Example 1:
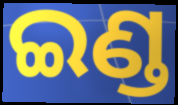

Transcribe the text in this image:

ଇଣ୍ଡ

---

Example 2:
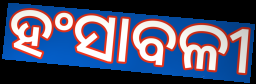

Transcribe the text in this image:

ହଂସାବଳୀ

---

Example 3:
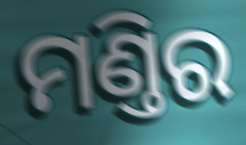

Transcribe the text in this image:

ମଣ୍ତିର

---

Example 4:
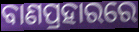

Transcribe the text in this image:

ବାଣପ୍ରହାରରେ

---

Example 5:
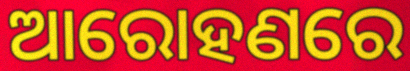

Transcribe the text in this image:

ଆରୋହଣରେ